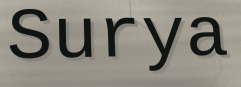
Surya